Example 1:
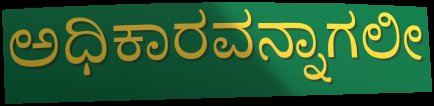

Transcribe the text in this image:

ಅಧಿಕಾರವನ್ನಾಗಲೀ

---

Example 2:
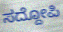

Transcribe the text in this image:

ಸದ್ದೋಪಿ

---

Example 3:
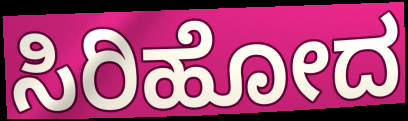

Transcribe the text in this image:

ಸಿರಿಹೋದ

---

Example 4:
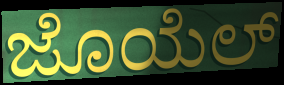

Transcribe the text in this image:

ಜೊಯೆಲ್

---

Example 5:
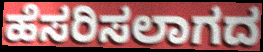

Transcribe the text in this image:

ಹೆಸರಿಸಲಾಗದ